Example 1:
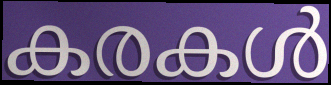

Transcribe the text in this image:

കരകൾ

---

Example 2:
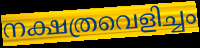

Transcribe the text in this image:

നക്ഷത്രവെളിച്ചം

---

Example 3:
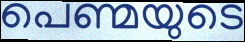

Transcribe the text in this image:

പെണ്മയുടെ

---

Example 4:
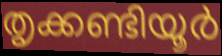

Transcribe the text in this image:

തൃക്കണ്ടിയൂർ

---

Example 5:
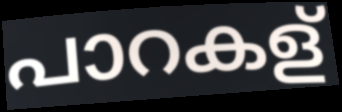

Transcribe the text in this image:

പാറകള്